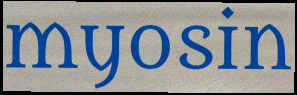
myosin